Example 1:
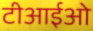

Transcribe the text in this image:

टीआईओ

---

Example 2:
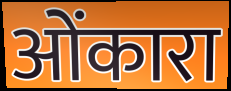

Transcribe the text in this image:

ओंकारा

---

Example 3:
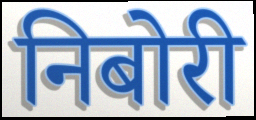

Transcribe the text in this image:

निबोरी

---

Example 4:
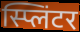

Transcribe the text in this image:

स्प्लिंटर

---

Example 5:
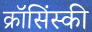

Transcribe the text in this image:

क्रॉसिंस्की